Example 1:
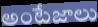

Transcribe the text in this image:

అంటేజాలు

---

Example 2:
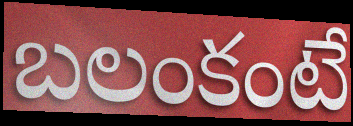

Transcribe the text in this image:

బలంకంటే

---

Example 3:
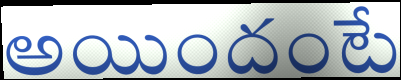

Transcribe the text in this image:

అయిందంటే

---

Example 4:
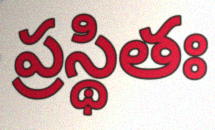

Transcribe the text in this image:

ప్రస్థితః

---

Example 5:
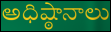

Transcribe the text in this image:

అధిష్ఠానాలు